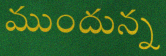
ముందున్న